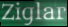
Ziglar